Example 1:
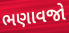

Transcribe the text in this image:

ભણાવજો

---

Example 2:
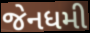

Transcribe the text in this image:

જેનધમી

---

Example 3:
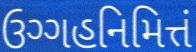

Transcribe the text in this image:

ઉગ્ગહનિમિત્તં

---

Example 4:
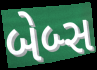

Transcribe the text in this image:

બેબ્સ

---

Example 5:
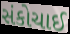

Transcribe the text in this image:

સંકોચાઈ